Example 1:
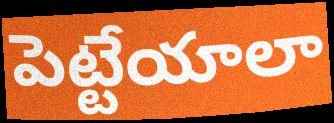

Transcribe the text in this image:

పెట్టేయాలా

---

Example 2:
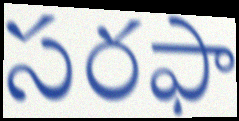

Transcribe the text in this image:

సరఫా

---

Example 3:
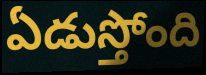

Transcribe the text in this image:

ఏడుస్తోంది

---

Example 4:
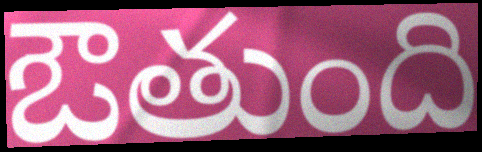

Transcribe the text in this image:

ఔతుంది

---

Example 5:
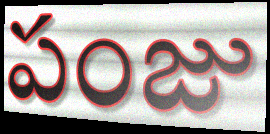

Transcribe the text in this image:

పంజు